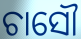
ଚାସୌ